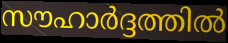
സൗഹാർദ്ദത്തിൽ